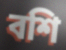
বশি